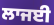
ਲਾਜਈ